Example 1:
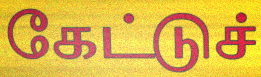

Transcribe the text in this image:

கேட்டுச்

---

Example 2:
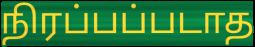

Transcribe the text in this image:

நிரப்பப்படாத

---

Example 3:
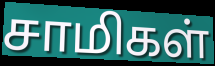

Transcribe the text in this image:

சாமிகள்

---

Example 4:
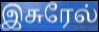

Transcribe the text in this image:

இசுரேல்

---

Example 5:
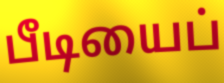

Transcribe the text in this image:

பீடியைப்